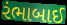
રંભાબાઈ